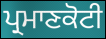
ਪ੍ਰਮਾਣਕੋਟੀ